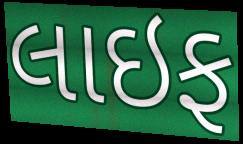
લાઇફ